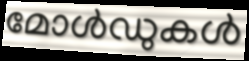
മോൾഡുകൾ